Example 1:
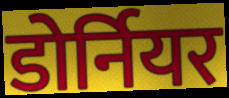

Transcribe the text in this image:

डोर्नियर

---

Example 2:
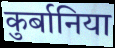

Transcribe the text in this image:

कुर्बानिया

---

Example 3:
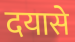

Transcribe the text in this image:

दयासे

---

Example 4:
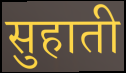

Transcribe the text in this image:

सुहाती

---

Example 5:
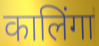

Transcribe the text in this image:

कालिंगा